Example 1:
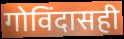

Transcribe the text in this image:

गोविंदासही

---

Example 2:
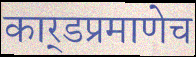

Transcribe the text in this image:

कार्डप्रमाणेच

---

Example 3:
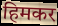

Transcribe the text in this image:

हिमकर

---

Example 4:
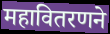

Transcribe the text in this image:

महावितरणने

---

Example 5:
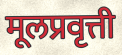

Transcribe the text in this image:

मूलप्रवृत्ती